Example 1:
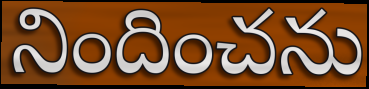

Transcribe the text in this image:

నిందించను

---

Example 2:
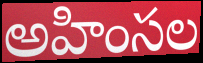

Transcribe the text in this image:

అహింసల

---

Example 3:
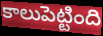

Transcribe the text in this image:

కాలుపెట్టింది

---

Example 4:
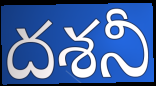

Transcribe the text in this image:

దశనీ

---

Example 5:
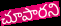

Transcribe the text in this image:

చూపారని